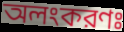
অলংকরণঃ